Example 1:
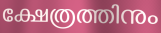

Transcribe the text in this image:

ക്ഷേത്രത്തിനും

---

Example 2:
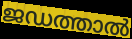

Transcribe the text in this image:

ജഡത്താൽ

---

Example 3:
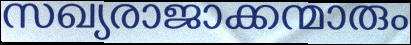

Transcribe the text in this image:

സഖ്യരാജാക്കന്മാരും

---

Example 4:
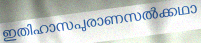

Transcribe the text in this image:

ഇതിഹാസപുരാണസൽക്കഥാ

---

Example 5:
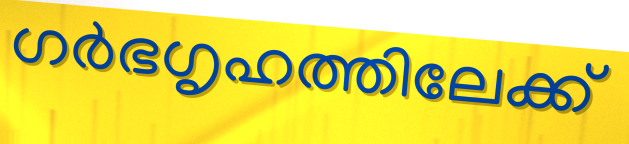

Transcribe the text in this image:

ഗർഭഗൃഹത്തിലേക്ക്